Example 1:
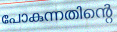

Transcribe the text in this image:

പോകുന്നതിന്റെ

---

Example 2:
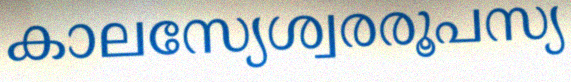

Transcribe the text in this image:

കാലസ്യേശ്വരരൂപസ്യ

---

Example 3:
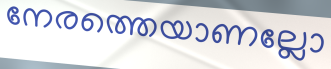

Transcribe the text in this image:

നേരത്തെയാണല്ലോ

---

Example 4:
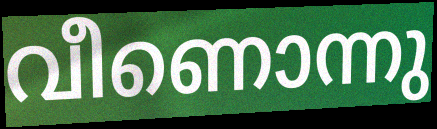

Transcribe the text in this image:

വീണൊന്നു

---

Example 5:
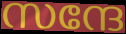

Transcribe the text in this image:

സന്ദേ